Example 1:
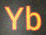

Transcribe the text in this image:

Yb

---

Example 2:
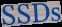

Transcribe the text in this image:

SSDs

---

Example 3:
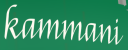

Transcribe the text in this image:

kammani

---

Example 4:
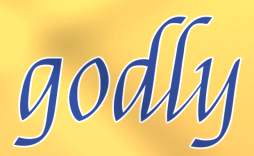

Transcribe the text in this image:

godly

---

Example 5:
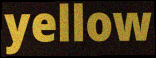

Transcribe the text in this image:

yellow